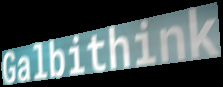
Galbithink